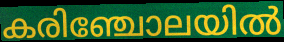
കരിഞ്ചോലയിൽ